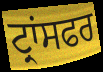
ਟ੍ਰਾਂਸਫਰ